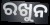
ରଖୁନ